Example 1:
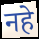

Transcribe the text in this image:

नहे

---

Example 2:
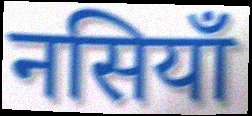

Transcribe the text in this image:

नसियाँ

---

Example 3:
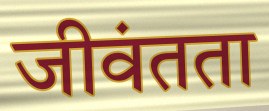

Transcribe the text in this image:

जीवंतता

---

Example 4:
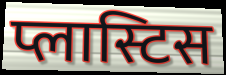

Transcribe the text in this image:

प्लास्टिस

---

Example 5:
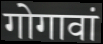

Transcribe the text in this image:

गोगावां